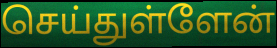
செய்துள்ளேன்